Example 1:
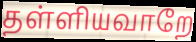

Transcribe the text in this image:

தள்ளியவாறே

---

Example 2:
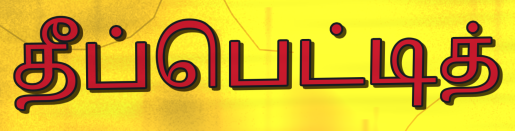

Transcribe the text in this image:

தீப்பெட்டித்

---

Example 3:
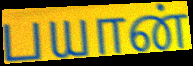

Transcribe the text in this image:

பயான்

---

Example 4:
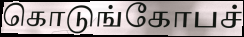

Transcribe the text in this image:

கொடுங்கோபச்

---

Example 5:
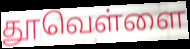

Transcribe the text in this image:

தூவெள்ளை